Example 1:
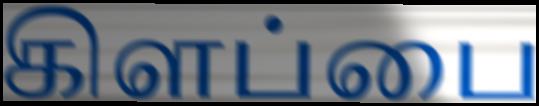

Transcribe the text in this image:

கிளப்பை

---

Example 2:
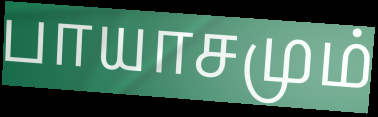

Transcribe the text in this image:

பாயாசமும்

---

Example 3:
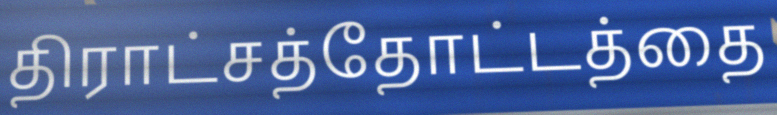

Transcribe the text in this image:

திராட்சத்தோட்டத்தை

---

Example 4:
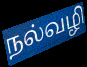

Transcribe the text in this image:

நல்வழி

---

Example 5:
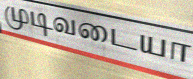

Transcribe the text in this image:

முடிவடையா